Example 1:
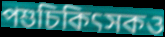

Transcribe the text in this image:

পশুচিকিৎসকও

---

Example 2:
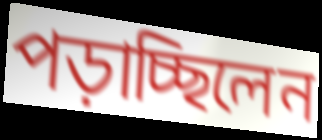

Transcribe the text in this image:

পড়াচ্ছিলেন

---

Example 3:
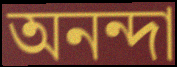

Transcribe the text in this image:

অনন্দা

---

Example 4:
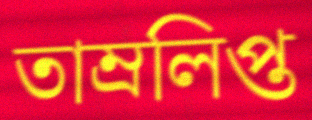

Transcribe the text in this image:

তাম্রলিপ্ত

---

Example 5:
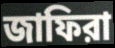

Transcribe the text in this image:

জাফিরা